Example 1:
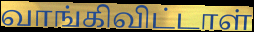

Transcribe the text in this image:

வாங்கிவிட்டாள்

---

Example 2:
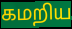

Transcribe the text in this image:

கமறிய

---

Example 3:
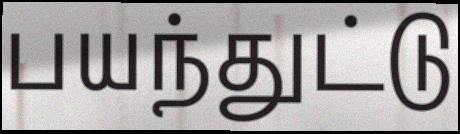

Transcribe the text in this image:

பயந்துட்டு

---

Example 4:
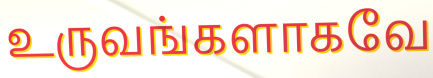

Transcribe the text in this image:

உருவங்களாகவே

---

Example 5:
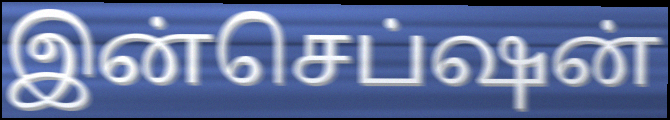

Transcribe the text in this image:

இன்செப்ஷன்